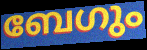
ബേഗും